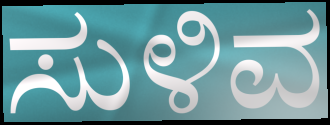
ಸುಳಿವ